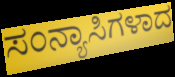
ಸಂನ್ಯಾಸಿಗಳಾದ